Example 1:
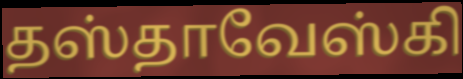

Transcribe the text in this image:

தஸ்தாவேஸ்கி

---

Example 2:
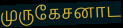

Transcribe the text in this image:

முருகேசனாட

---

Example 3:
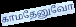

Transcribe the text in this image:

காமதேனுவோ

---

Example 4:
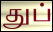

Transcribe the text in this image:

துப்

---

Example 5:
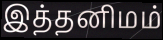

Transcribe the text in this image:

இத்தனிமம்